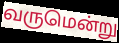
வருமென்று